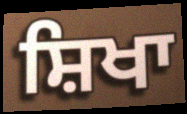
ਸ਼ਿਖਾ